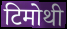
टिमोथी